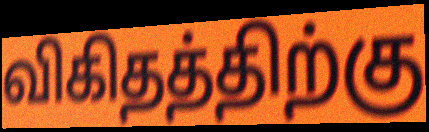
விகிதத்திற்கு